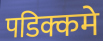
पडिक्कमे